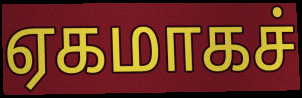
ஏகமாகச்